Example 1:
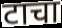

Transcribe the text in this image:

टाचा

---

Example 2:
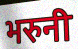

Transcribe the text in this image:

भरुनी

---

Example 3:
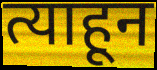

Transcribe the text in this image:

त्याहून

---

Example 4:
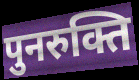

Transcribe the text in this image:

पुनरुक्ति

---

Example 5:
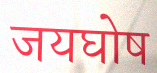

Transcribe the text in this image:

जयघोष